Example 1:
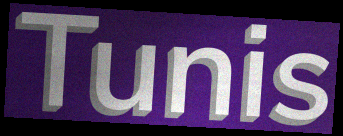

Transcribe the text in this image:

Tunis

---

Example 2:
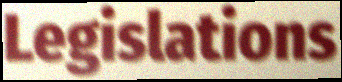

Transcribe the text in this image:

Legislations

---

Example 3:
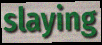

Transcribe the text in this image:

slaying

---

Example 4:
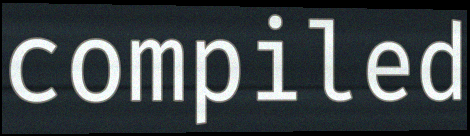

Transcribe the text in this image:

compiled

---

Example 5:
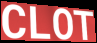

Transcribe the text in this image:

CLOT